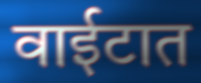
वाईटात